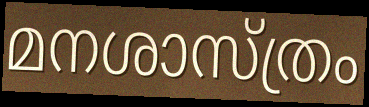
മനശാസ്ത്രം